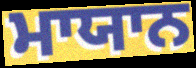
ਮਾਯਾਨ